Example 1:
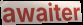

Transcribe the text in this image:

awaiter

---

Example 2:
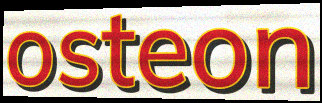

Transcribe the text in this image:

osteon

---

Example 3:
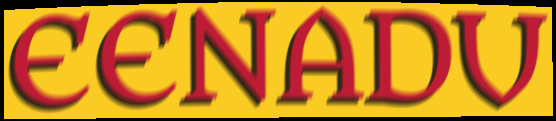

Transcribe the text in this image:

EENADU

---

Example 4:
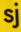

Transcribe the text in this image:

sj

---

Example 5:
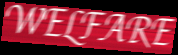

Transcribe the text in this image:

WELFARE